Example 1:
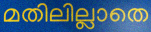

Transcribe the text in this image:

മതിലില്ലാതെ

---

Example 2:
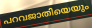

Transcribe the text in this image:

പറവജാതിയെയും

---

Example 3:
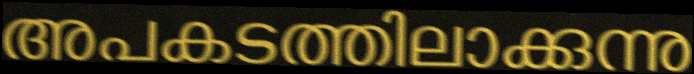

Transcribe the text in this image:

അപകടത്തിലാക്കുന്നു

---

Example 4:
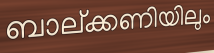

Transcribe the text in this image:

ബാല്ക്കണിയിലും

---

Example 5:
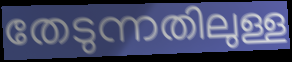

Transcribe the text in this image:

തേടുന്നതിലുള്ള